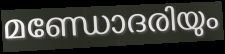
മണ്ഡോദരിയും